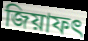
জিয়াফৎ